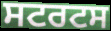
ਸਟਰਟਸ